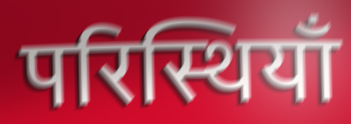
परिस्थियाँ